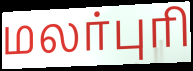
மலர்புரி